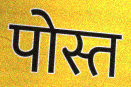
पोस्त